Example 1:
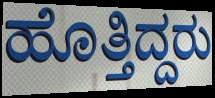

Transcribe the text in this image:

ಹೊತ್ತಿದ್ದರು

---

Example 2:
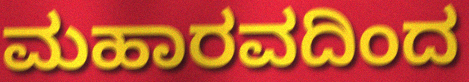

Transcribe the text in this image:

ಮಹಾರವದಿಂದ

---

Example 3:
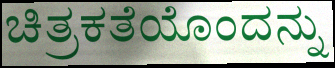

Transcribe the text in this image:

ಚಿತ್ರಕತೆಯೊಂದನ್ನು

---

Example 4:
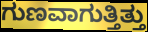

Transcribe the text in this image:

ಗುಣವಾಗುತ್ತಿತ್ತು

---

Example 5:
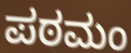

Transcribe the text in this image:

ಪಠಮಂ